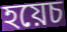
হয়েচ